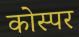
कोस्पर